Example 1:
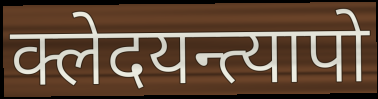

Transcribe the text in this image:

क्लेदयन्त्यापो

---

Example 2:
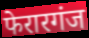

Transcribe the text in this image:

फेरारगंज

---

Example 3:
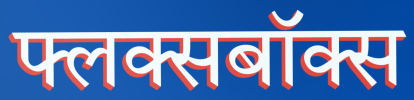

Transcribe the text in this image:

फ्लक्सबॉक्स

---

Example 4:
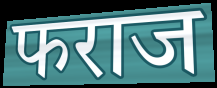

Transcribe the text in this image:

फराज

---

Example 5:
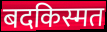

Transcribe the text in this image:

बदकिस्‍मत